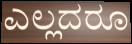
ಎಲ್ಲದರೂ